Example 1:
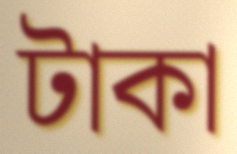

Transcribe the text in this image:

টাকা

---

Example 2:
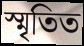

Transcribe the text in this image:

স্মৃতিত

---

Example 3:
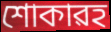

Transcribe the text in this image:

শোকাৱহ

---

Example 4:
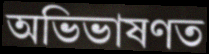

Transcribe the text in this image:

অভিভাষণত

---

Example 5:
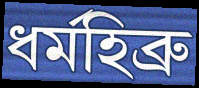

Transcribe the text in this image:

ধৰ্মহিব্ৰু